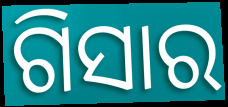
ଗିସାର